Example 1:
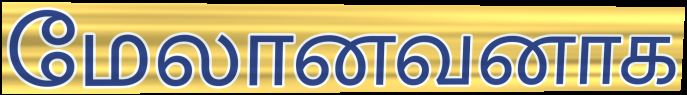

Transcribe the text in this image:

மேலானவனாக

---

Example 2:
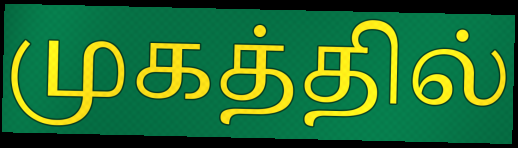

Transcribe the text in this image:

முகத்தில்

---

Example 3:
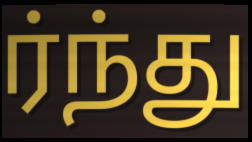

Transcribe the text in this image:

ர்ந்து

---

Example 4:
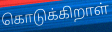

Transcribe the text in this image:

கொடுக்கிறாள்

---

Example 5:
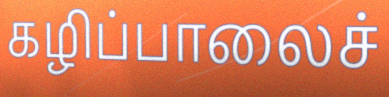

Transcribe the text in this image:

கழிப்பாலைச்